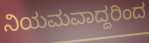
ನಿಯಮವಾದ್ದರಿಂದ